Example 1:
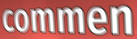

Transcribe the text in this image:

commen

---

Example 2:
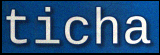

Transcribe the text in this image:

ticha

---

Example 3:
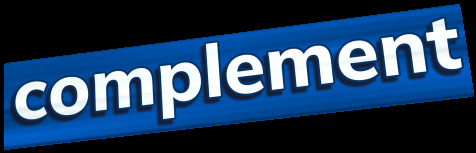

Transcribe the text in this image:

complement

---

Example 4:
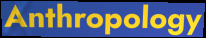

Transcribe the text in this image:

Anthropology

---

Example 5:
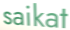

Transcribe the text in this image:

saikat